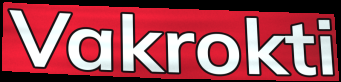
Vakrokti